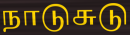
நாடுசுடு